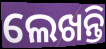
ଲେଖନ୍ତି